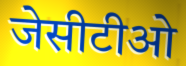
जेसीटीओ